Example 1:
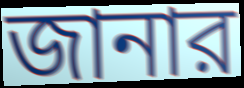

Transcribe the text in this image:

জানার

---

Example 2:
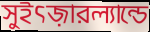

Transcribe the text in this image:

সুইৎজ়ারল্যান্ডে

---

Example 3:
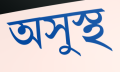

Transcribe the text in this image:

অসুস্থ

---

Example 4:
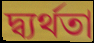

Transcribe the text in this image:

দ্ব্যর্থতা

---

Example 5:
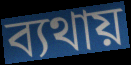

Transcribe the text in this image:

ব্যথায়